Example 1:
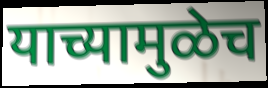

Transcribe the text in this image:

याच्यामुळेच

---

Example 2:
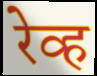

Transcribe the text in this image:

रेव्ह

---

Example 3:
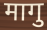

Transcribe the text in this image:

मागु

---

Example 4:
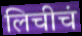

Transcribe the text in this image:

लिचीचं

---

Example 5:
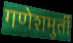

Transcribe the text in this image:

गणेशमुर्ती